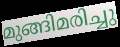
മുങ്ങിമരിച്ചു